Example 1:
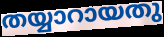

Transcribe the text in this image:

തയ്യാറായതു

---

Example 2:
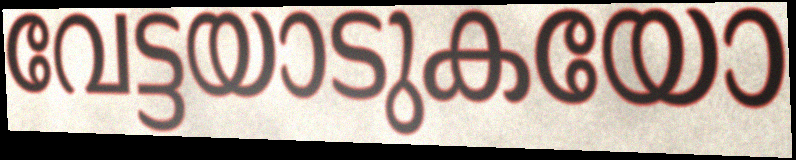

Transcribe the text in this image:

വേട്ടയാടുകയോ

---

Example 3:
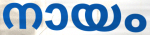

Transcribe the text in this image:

നായം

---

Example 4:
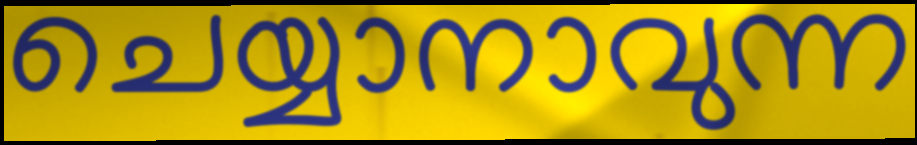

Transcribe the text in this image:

ചെയ്യാനാവുന്ന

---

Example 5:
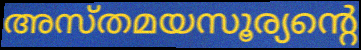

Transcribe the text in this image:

അസ്തമയസൂര്യന്റെ